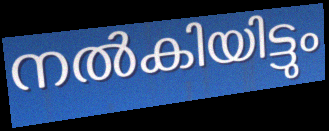
നൽകിയിട്ടും